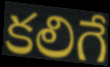
కలిగే